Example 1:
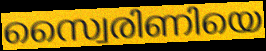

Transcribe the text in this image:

സ്വൈരിണിയെ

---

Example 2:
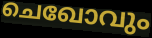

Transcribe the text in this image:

ചെഖോവും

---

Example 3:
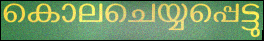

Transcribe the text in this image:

കൊലചെയ്യപ്പെട്ടു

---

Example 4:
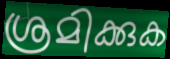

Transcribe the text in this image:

ശ്രമിക്കുക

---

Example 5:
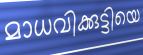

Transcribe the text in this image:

മാധവിക്കുട്ടിയെ